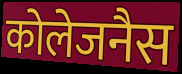
कोलेजनैस